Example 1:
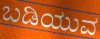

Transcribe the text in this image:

ಬಡಿಯುವ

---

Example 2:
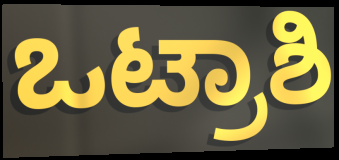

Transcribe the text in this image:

ಒಟ್ರಾಶಿ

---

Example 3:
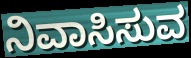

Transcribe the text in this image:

ನಿವಾಸಿಸುವ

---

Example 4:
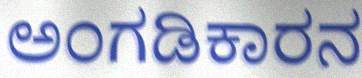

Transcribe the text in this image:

ಅಂಗಡಿಕಾರನ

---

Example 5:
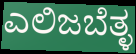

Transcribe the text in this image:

ಎಲಿಜಬೆತ್ಳ